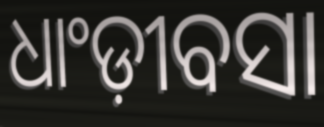
ଧାଂଡ଼ୀବସା